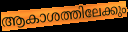
ആകാശത്തിലേക്കും